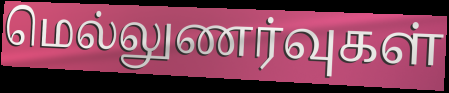
மெல்லுணர்வுகள்